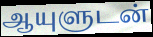
ஆயுளுடன்